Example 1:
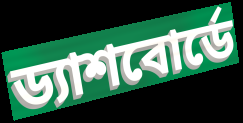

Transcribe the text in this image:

ড্যাশবোর্ডে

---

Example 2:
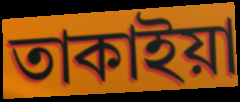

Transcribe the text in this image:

তাকাইয়া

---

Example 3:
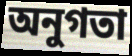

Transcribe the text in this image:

অনুগতা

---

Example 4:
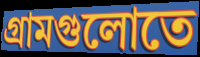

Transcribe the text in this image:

গ্রামগুলোতে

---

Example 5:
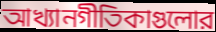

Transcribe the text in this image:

আখ্যানগীতিকাগুলোর